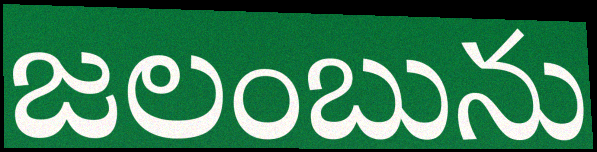
జలంబును